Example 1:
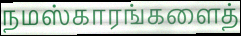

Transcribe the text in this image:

நமஸ்காரங்களைத்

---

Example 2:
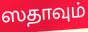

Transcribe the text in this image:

ஸதாவும்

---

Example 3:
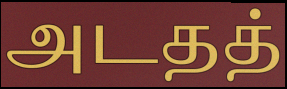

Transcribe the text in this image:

அடதத்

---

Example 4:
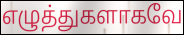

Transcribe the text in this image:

எழுத்துகளாகவே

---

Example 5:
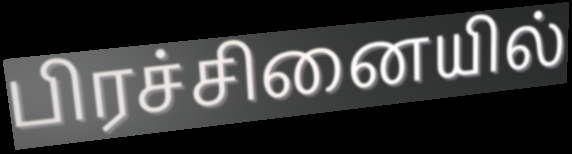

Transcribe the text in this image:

பிரச்சினையில்